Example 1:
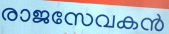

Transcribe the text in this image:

രാജസേവകൻ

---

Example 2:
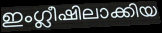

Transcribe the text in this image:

ഇംഗ്ലീഷിലാക്കിയ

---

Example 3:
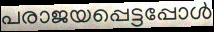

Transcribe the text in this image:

പരാജയപ്പെട്ടപ്പോൾ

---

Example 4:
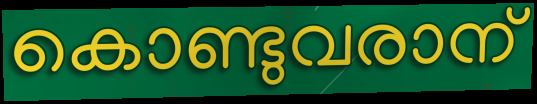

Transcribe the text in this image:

കൊണ്ടുവരാന്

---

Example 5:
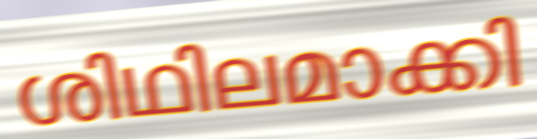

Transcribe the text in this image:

ശിഥിലമാക്കി